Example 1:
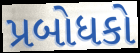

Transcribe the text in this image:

પ્રબોધકો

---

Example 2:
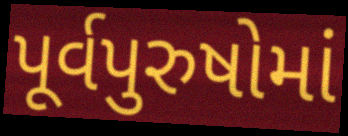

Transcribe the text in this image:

પૂર્વપુરુષોમાં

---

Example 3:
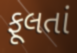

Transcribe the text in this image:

ફૂલતાં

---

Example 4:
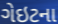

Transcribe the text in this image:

ગેઇટના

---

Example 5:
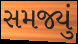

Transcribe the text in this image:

સમજ્યું